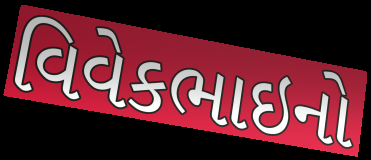
વિવેકભાઇનો